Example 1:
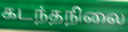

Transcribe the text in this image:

கடந்தநிலை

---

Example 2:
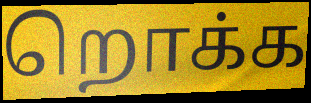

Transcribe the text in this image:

றொக்க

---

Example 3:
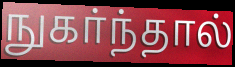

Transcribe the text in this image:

நுகர்ந்தால்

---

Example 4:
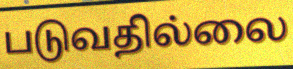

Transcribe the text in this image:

படுவதில்லை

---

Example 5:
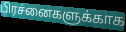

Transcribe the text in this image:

பிரச்னைகளுக்காக